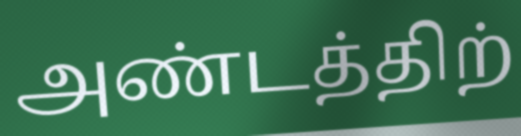
அண்டத்திற்